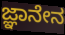
ಜ್ಞಾನೇನ